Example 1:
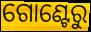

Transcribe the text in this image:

ଗୋଣ୍ଟେରୁ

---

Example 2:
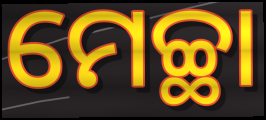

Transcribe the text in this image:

ମେଚ୍ଛା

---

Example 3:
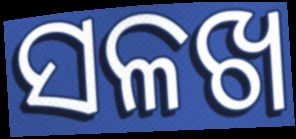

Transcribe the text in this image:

ସଳଖ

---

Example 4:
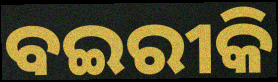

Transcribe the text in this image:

ବଇରୀକି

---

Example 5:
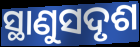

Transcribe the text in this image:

ସ୍ଥାଣୁସଦୃଶ